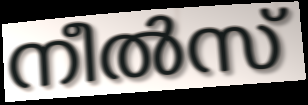
നീൽസ്